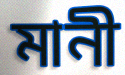
মানী